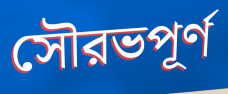
সৌরভপূর্ণ